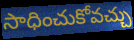
సాధించుకోవచ్చు